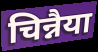
चिन्नैया